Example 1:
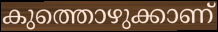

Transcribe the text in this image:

കുത്തൊഴുക്കാണ്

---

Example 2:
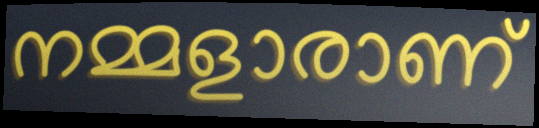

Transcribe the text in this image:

നമ്മളാരാണ്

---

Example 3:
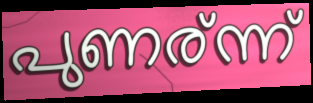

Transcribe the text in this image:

പുണര്ന്ന്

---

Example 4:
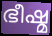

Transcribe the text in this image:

ഭീഷ്മ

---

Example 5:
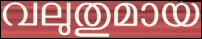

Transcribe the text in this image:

വലുതുമായ